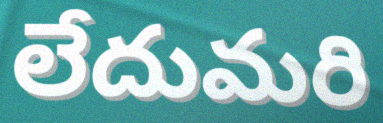
లేదుమరి